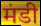
मंडी